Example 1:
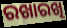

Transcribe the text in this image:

ରଖାରଖି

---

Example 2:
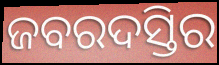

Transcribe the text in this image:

ଜବରଦସ୍ତିର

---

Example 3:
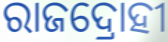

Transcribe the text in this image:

ରାଜଦ୍ରୋହୀ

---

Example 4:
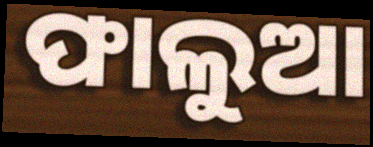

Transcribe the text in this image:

ଫାଲୁଆ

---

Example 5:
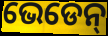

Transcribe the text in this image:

ଭେଡେନ୍